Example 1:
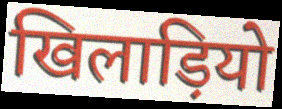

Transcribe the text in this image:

खिलाड़ियो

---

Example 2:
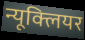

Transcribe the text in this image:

न्‍यूक्लियर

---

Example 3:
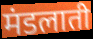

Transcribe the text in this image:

मंडलाती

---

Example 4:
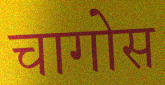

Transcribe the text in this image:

चागोस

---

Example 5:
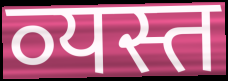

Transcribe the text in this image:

व्‍यस्‍त